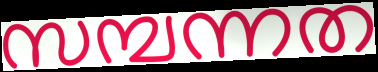
സമ്പന്നത